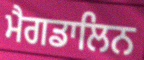
ਮੈਗਡਾਲਿਨ